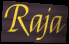
Raja